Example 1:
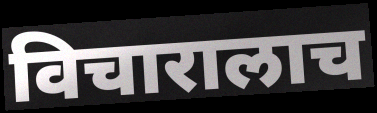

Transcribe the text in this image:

विचारालाच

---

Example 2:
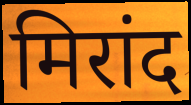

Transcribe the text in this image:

मिरांद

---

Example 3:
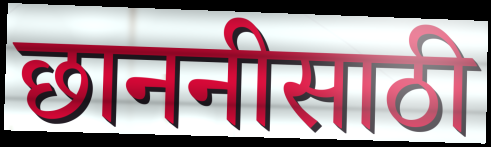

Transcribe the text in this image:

छाननीसाठी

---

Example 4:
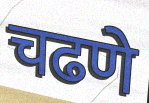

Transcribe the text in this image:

चढणे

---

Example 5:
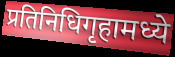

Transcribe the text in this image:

प्रतिनिधिगृहामध्ये